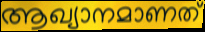
ആഖ്യാനമാണത്